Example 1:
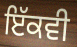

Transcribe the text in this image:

ਇੱਕਵੀ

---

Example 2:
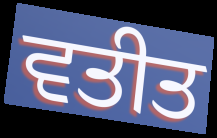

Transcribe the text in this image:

ਵਤੀਤ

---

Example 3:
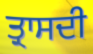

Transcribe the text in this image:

ਤ੍ਰਾਸਦੀ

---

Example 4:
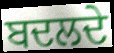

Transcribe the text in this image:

ਬਦਲਦੇ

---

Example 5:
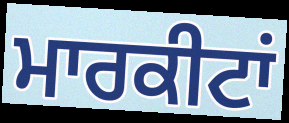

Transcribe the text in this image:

ਮਾਰਕੀਟਾਂ